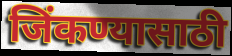
जिंकण्यासाठी